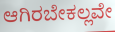
ಆಗಿರಬೇಕಲ್ಲವೇ